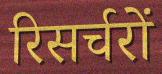
रिसर्चरों